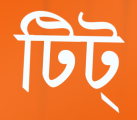
টিট্